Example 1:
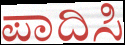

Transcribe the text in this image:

ಪಾದಿಸಿ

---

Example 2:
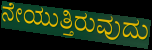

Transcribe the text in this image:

ನೇಯುತ್ತಿರುವುದು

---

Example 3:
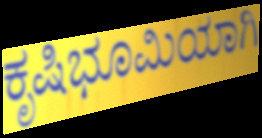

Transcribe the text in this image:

ಕೃಷಿಭೂಮಿಯಾಗಿ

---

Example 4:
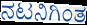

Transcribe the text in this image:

ನಟನಿಗಿಂತ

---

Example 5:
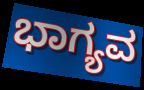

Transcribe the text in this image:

ಭಾಗ್ಯವ